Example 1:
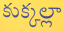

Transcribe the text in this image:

కుక్కల్లా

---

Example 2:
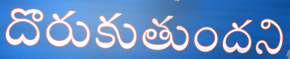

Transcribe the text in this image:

దొరుకుతుందని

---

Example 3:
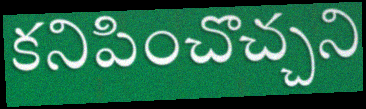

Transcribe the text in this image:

కనిపించొచ్చని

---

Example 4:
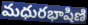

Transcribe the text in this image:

మధురభాషిణి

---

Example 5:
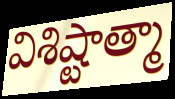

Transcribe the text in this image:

విశిష్టాత్మా